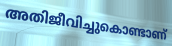
അതിജീവിച്ചുകൊണ്ടാണ്